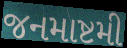
જનમાષ્ટમી